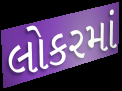
લોકરમાં